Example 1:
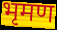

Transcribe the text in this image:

भृमण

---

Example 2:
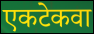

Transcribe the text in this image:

एकटेकवा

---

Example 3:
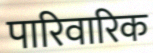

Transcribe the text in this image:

पारिवारिक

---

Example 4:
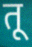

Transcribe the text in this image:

तू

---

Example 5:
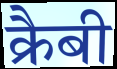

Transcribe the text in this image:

क्रैबी